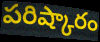
పరిష్కారం